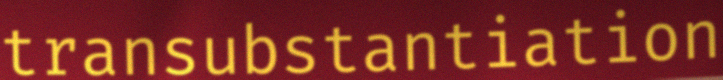
transubstantiation